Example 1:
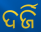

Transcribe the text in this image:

ଦର୍ଜି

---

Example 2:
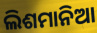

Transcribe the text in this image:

ଲିଶମାନିଆ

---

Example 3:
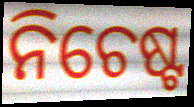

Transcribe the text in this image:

ନିଚେଷ୍ଟ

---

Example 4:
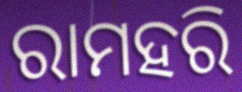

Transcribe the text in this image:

ରାମହରି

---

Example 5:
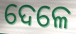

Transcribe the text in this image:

ଦେଳେ